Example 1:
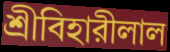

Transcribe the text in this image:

শ্রীবিহারীলাল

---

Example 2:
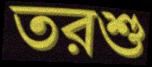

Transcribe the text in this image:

তরশু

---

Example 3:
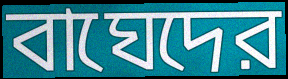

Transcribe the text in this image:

বাঘেদের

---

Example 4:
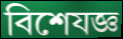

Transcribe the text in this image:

বিশেযজ্ঞ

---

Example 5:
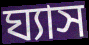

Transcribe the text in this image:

ঘ্যাস